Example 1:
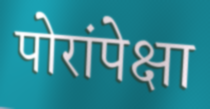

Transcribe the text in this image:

पोरांपेक्षा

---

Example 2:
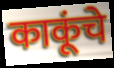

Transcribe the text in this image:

काकूंचे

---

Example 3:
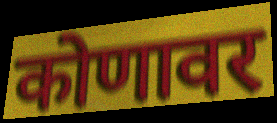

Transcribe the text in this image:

कोणावर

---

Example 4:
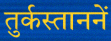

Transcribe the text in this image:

तुर्कस्ताननें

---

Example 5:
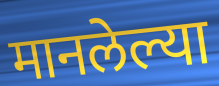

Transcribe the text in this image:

मानलेल्या